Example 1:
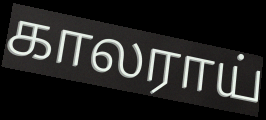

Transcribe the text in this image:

காலராய்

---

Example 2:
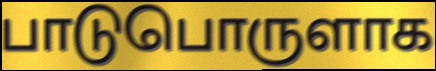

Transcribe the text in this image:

பாடுபொருளாக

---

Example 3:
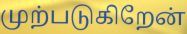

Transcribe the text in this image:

முற்படுகிறேன்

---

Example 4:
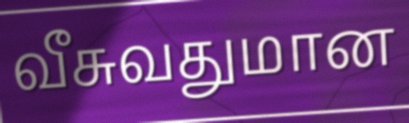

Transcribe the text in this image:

வீசுவதுமான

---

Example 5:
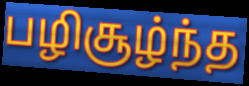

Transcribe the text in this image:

பழிசூழ்ந்த